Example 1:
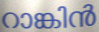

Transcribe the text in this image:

റാങ്കിൻ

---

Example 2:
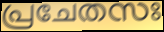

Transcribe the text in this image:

പ്രചേതസഃ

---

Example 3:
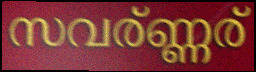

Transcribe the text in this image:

സവര്ണ്ണര്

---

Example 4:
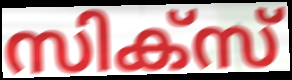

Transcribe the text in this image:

സിക്സ്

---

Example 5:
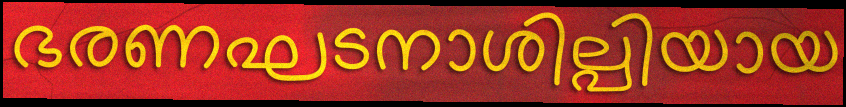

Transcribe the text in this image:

ഭരണഘടനാശില്പിയായ